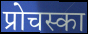
प्रोचस्का